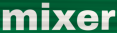
mixer